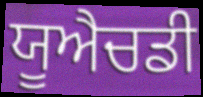
ਯੂਐਚਡੀ